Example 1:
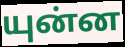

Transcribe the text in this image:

யுன்ன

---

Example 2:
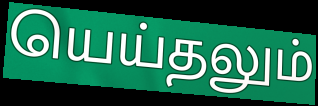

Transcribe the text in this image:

யெய்தலும்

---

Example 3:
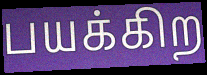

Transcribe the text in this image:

பயக்கிற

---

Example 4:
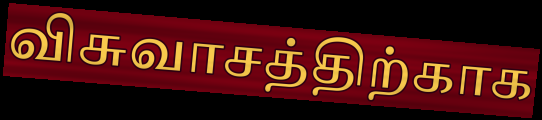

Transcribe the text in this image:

விசுவாசத்திற்காக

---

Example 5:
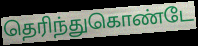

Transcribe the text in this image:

தெரிந்துகொண்டே